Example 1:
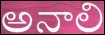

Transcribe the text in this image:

అనాలి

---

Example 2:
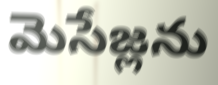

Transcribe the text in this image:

మెసేజ్లను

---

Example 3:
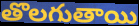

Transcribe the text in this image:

తొలగుతాయి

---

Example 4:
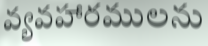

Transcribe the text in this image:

వ్యవహారములను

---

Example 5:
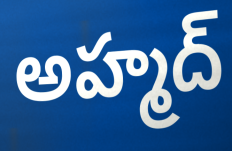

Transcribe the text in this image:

అహ్మద్